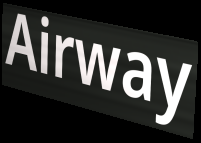
Airway